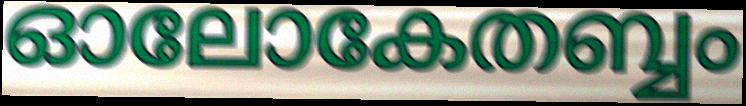
ഓലോകേതബ്ബം